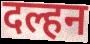
दल्हन